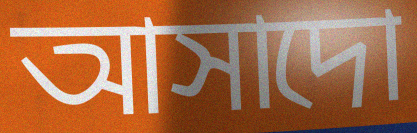
আসাদো